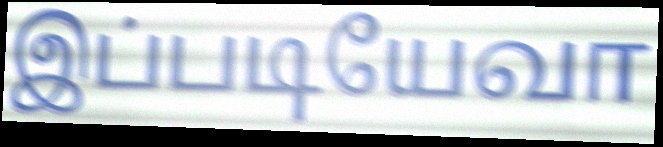
இப்படியேவா